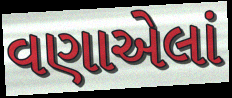
વણાએલાં